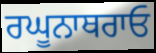
ਰਘੂਨਾਥਰਾਓ